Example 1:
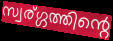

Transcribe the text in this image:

സ്വര്ഗ്ഗത്തിന്റെ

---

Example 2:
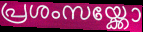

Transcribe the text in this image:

പ്രശംസയ്ക്കോ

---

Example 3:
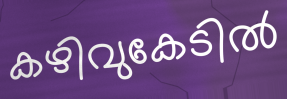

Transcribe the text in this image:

കഴിവുകേടിൽ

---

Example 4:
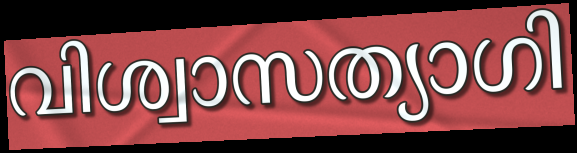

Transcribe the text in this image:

വിശ്വാസത്യാഗി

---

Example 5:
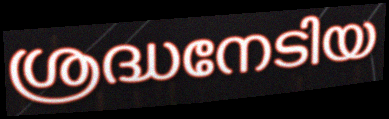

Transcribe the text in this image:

ശ്രദ്ധനേടിയ